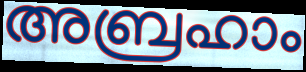
അബ്രഹാം